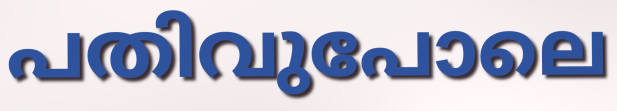
പതിവുപോലെ